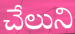
చేలుని